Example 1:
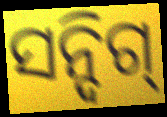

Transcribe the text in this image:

ସନ୍ଦିଗ୍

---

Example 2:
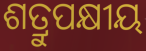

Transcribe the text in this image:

ଶତ୍ରୁପକ୍ଷୀୟ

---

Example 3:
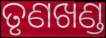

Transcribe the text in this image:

ତୃଣଖଣ୍ଡ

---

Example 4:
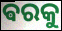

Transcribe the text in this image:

ଵରକୁ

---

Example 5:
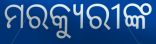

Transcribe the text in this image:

ମରକ୍ୟୁରୀଙ୍କ